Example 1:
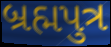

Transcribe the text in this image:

બ્રહ્મપુત્ર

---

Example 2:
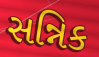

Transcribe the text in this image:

સન્નિક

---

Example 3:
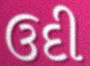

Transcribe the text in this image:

ઉદી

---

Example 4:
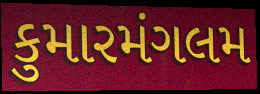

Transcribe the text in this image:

કુમારમંગલમ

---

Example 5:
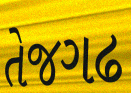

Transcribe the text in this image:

તેજગઢ